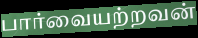
பார்வையற்றவன்